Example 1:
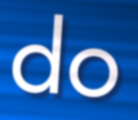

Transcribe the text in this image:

do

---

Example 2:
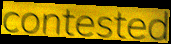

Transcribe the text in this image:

contested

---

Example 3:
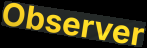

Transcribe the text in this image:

Observer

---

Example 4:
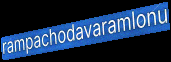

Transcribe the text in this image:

rampachodavaramlonu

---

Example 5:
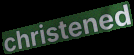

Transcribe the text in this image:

christened